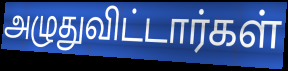
அழுதுவிட்டார்கள்